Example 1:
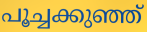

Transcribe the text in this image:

പൂച്ചക്കുഞ്ഞ്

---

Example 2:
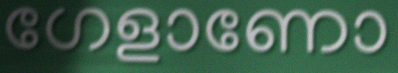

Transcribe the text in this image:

ഗേളാണോ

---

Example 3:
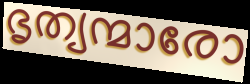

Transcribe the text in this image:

ഭൃത്യന്മാരോ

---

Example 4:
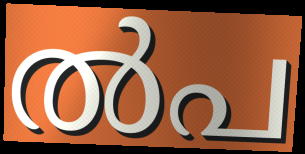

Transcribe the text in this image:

ൽപ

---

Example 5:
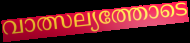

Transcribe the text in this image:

വാത്സല്യത്തോടെ